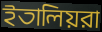
ইতালিয়রা